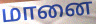
மானை